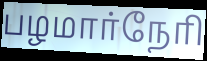
பழமார்நேரி